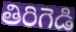
తిరిగెడి